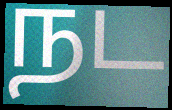
நட